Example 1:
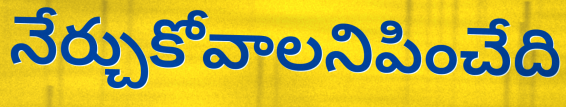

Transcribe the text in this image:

నేర్చుకోవాలనిపించేది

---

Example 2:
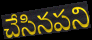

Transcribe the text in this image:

చేసినపని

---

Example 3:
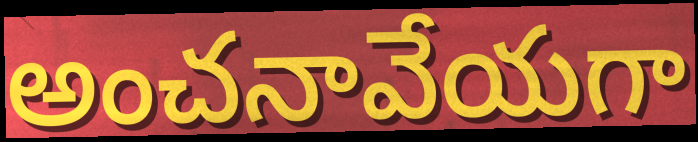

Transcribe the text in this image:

అంచనావేయగా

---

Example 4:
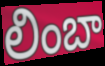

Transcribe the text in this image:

లింబా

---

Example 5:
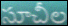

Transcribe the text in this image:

సూచీల